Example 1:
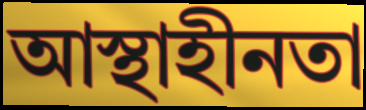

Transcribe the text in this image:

আস্থাহীনতা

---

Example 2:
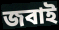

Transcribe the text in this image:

জবাই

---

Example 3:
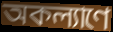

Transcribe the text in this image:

অকল্যাণে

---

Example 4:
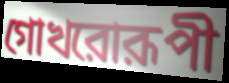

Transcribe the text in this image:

গোখরোরূপী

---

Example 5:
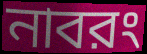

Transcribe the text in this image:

নাবরং